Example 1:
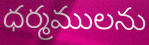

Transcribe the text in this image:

ధర్మములను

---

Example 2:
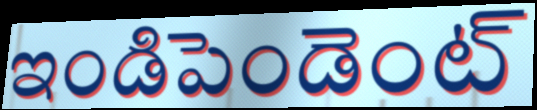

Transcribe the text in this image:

ఇండిపెండెంట్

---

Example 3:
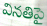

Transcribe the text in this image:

వినతిపై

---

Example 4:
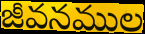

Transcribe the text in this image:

జీవనముల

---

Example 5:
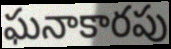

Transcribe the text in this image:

ఘనాకారపు